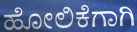
ಹೋಲಿಕೆಗಾಗಿ